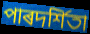
পাৰদৰ্শিতা